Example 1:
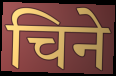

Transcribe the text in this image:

चिने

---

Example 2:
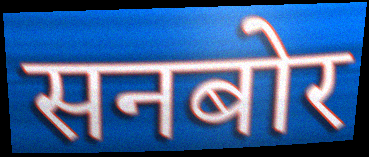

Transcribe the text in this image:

सनबोर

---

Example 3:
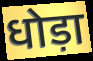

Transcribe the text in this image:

धोड़ा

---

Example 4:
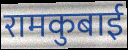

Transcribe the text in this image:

रामकुबाई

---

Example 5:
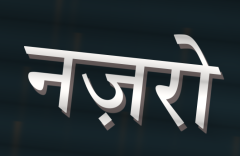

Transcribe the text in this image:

नज़रो